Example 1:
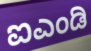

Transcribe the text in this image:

ಐಎಂಡಿ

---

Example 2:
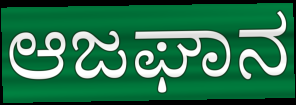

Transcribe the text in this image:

ಆಜಘಾನ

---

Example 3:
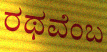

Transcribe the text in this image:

ರಥವೆಂಬ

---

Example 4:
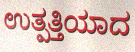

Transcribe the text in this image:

ಉತ್ಪತ್ತಿಯಾದ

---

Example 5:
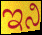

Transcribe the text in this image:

ಇನಿ